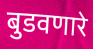
बुडवणारे